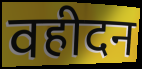
वहीदन